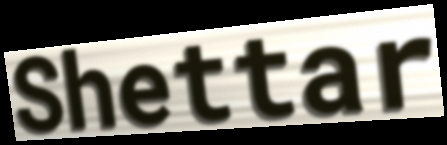
Shettar